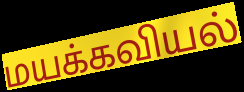
மயக்கவியல்